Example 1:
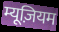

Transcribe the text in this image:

म्यूज़ियम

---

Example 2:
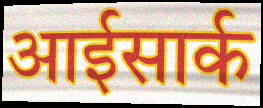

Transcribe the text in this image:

आईसार्क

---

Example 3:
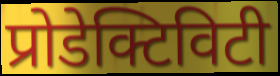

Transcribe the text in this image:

प्रोडेक्टिविटी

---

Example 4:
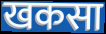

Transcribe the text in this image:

खकसा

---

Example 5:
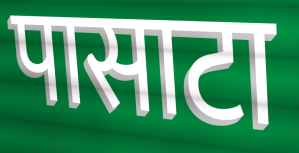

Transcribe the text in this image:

पासाटा